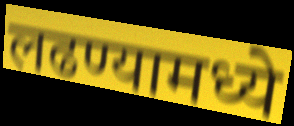
लढण्यामध्ये